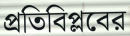
প্রতিবিপ্লবের